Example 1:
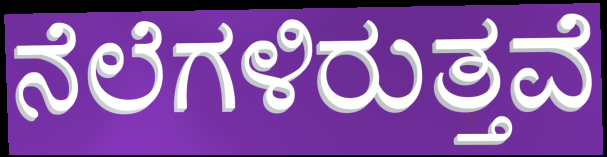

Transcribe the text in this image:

ನೆಲೆಗಳಿರುತ್ತವೆ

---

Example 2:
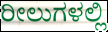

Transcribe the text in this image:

ರೀಲುಗಳಲ್ಲಿ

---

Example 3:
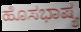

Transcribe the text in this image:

ಹೊಸಭಾಷ್ಯ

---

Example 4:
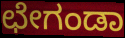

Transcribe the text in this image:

ಛೇಗಂಡಾ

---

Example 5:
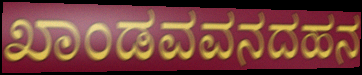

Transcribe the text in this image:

ಖಾಂಡವವನದಹನ